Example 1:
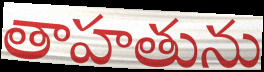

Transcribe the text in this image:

తాహతును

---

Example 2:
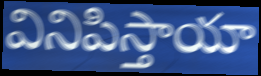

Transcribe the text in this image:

వినిపిస్తాయా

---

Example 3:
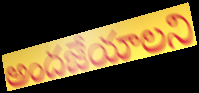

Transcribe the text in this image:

అందజేయాలని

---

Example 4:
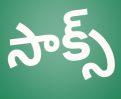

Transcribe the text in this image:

సాక్స్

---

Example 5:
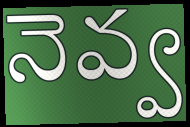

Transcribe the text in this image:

నెవ్వ